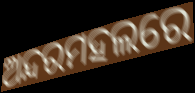
ଅନ୍ଦରମହଲରେ